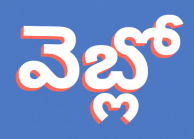
వెబ్లో